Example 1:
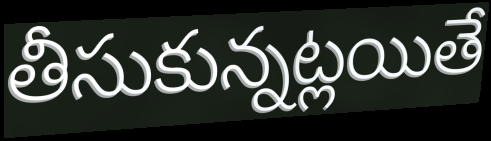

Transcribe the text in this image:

తీసుకున్నట్లయితే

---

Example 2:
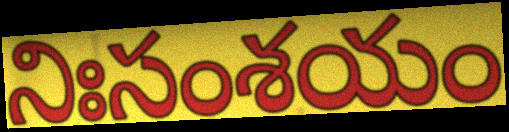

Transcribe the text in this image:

నిఃసంశయం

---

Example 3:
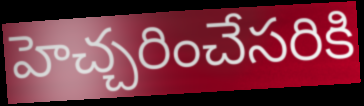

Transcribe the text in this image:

హెచ్చరించేసరికి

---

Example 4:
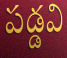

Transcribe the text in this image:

పడ్డవి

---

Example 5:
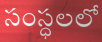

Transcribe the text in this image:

సంస్ధలలో